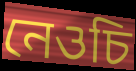
নেওচি